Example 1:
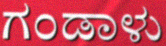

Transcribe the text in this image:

ಗಂಡಾಳು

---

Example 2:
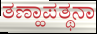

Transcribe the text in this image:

ತಣ್ಹಾಪತ್ಥನಾ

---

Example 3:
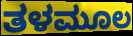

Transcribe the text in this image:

ತಳಮೂಲ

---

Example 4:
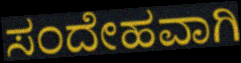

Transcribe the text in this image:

ಸಂದೇಹವಾಗಿ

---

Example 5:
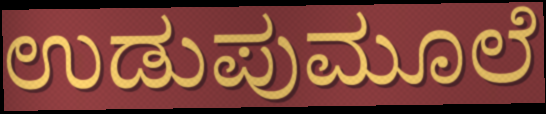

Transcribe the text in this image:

ಉಡುಪುಮೂಲೆ